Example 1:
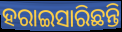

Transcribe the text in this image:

ହରାଇସାରିଛନ୍ତି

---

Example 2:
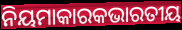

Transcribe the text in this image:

ନିୟମାକାରକଭାରତୀୟ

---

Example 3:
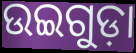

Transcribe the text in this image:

ଉଇଗୁଡ଼ା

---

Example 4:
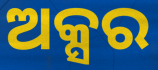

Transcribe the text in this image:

ଅକ୍ସର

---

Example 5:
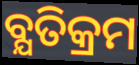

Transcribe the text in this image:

ବ୍ଯତିକ୍ରମ